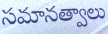
సమానత్వాలు